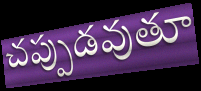
చప్పుడవుతూ